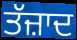
ਤੱਜ਼ਾਦ